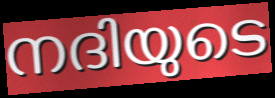
നദിയുടെ